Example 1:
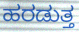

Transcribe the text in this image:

ಹರಡುತ್ತ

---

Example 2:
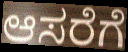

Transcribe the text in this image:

ಆಸರೆಗೆ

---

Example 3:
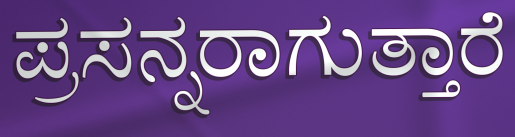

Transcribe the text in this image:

ಪ್ರಸನ್ನರಾಗುತ್ತಾರೆ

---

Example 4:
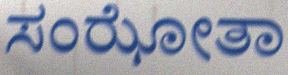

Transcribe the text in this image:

ಸಂಝೋತಾ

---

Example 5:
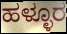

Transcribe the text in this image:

ಹಳ್ಳೂರ